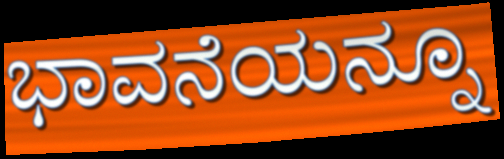
ಭಾವನೆಯನ್ನೂ